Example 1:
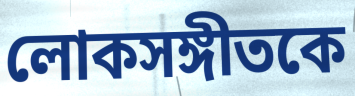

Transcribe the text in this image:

লোকসঙ্গীতকে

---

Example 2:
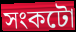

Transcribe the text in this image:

সংকটো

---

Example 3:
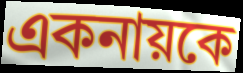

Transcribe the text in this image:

একনায়কে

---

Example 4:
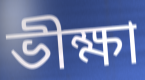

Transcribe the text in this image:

ভীক্ষা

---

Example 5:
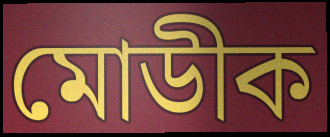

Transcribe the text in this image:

মোডীক